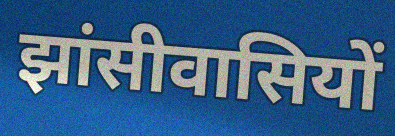
झांसीवासियों